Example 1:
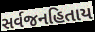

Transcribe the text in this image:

સર્વજનહિતાય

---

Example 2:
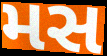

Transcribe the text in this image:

મસ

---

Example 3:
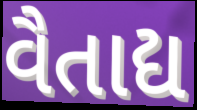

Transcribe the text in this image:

વૈતાદ્ય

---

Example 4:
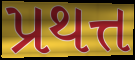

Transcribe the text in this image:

પ્રથત્ત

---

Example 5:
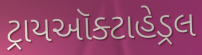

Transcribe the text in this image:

ટ્રાયઑક્ટાહેડ્રલ